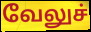
வேலுச்